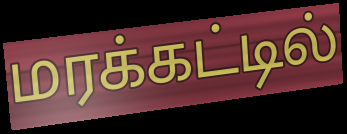
மரக்கட்டில்